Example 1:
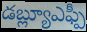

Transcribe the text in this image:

డబ్ల్యూఎఫ్పీ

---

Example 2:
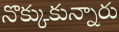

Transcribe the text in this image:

నొక్కుకున్నారు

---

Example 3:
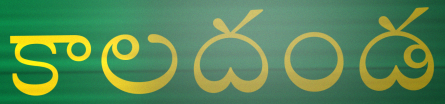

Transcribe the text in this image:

కాలదండ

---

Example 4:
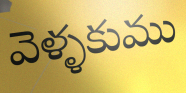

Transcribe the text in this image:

వెళ్ళకుము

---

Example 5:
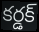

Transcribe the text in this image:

కర్డక్